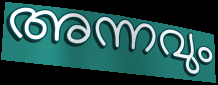
അന്നവും